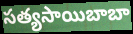
సత్యసాయిబాబా